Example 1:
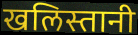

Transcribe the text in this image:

खलिस्तानी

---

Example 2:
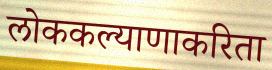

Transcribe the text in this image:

लोककल्याणाकरिता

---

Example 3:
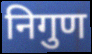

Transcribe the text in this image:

निगुण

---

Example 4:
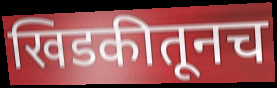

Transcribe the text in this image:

खिडकीतूनच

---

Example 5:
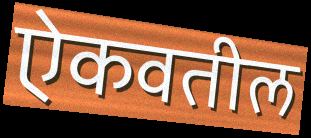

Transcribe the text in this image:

ऐकवतील